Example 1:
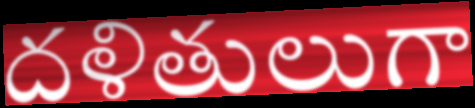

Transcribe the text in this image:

దళితులుగా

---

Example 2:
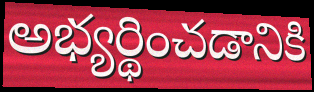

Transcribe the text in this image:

అభ్యర్థించడానికి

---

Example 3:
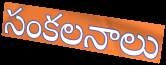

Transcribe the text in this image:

సంకలనాలు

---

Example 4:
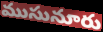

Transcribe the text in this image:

ముసునూరు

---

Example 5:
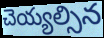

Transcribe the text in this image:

చెయ్యల్సిన